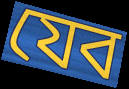
যেব